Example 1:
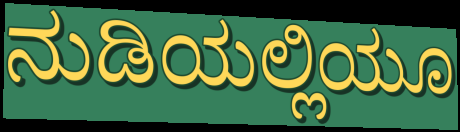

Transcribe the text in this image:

ನುಡಿಯಲ್ಲಿಯೂ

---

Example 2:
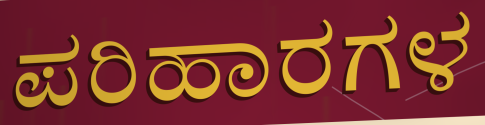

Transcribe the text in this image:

ಪರಿಹಾರಗಳ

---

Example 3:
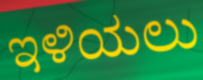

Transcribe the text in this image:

ಇಳಿಯಲು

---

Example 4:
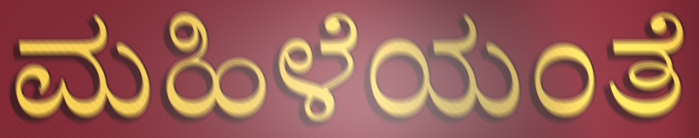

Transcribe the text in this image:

ಮಹಿಳೆಯಂತೆ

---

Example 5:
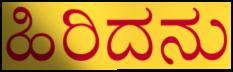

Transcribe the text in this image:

ಹಿರಿದನು